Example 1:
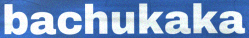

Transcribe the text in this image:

bachukaka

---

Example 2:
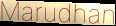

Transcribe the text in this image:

Marudhan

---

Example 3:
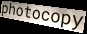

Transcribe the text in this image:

photocopy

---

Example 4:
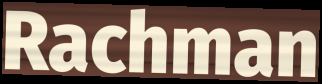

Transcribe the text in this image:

Rachman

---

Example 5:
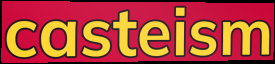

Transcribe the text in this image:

casteism